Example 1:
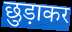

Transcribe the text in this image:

छुड़ाकर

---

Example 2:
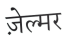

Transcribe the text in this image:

ज़ेल्मर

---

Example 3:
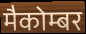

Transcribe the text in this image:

मैकोम्बर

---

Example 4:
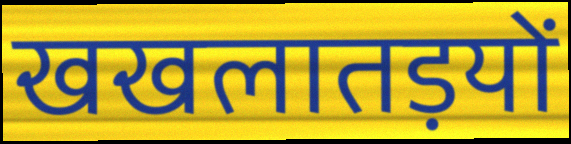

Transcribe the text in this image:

खखलातड़यों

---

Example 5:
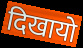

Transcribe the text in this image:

दिखायो